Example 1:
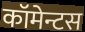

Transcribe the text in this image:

कॉमेन्टस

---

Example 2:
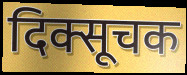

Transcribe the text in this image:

दिक्सूचक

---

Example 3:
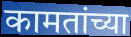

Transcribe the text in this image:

कामतांच्या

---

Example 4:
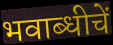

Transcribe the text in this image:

भवाब्धीचें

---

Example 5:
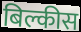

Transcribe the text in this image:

बिल्कीस